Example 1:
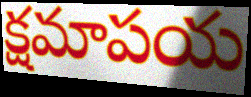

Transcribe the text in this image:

క్షమాపయ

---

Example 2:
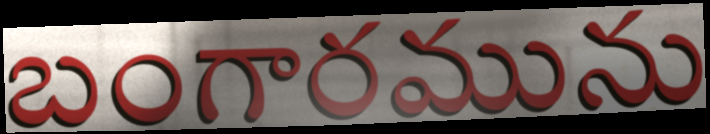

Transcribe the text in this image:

బంగారమును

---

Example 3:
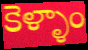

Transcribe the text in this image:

కెళ్ళాం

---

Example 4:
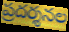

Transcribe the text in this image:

ప్రదర్శనల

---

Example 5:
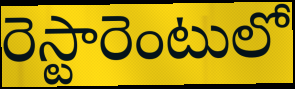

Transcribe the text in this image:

రెస్టారెంటులో